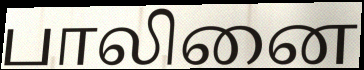
பாலினை